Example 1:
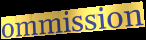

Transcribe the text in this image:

ommission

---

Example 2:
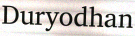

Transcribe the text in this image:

Duryodhan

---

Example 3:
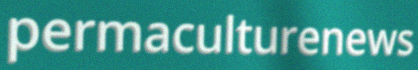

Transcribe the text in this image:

permaculturenews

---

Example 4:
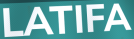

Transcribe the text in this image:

LATIFA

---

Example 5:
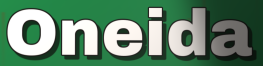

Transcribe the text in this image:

Oneida